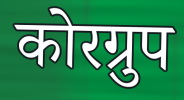
कोरग्रुप